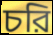
চরি